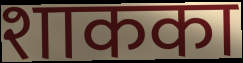
शाकका